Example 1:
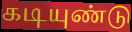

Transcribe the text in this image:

கடியுண்டு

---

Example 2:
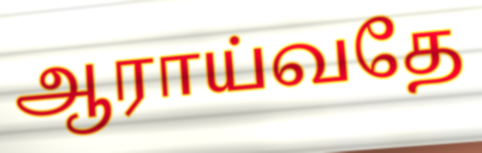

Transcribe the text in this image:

ஆராய்வதே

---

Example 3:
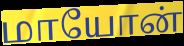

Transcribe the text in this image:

மாயோன்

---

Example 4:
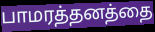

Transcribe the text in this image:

பாமரத்தனத்தை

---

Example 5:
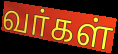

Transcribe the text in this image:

வர்கள்